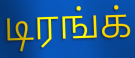
டிரங்க்